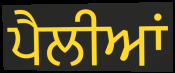
ਪੈਲੀਆਂ